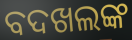
ବଦଖଲଙ୍କ